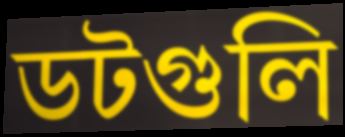
ডটগুলি